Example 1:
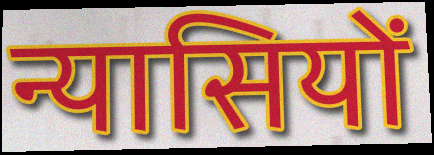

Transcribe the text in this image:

न्यासियों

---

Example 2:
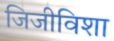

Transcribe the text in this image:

जिजीविशा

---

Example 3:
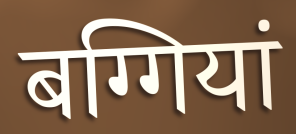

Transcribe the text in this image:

बग्गियां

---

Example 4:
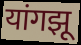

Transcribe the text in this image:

यांगझू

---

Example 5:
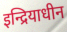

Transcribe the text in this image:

इन्द्रियाधीन